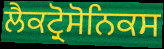
ਲੈਕਟ੍ਰੋਸੋਨਿਕਸ